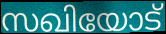
സഖിയോട്